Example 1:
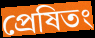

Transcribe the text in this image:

প্রেষিতং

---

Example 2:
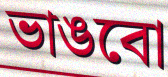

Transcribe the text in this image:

ভাঙবো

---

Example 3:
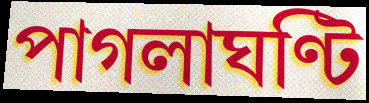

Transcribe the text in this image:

পাগলাঘণ্টি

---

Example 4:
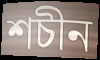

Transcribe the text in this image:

শচীন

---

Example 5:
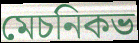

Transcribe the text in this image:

মেচনিকভ